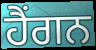
ਹੈਂਗਨ